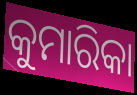
କୁମାରିକା